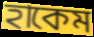
হাকেম